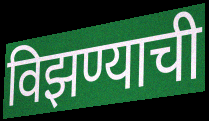
विझण्याची